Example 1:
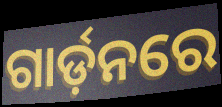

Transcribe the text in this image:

ଗାର୍ଡ଼ନରେ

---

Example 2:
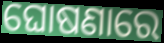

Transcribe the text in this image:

ଘୋଷଣାରେ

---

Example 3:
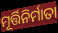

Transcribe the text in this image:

ମୂର୍ତ୍ତିନିର୍ମାତା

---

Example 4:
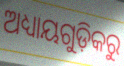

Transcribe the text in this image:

ଅଧ୍ୟାୟଗୁଡ଼ିକରୁ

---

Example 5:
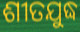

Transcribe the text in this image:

ଶୀତଯୁଦ୍ଧ